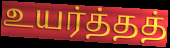
உயர்த்தத்